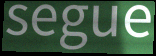
segue